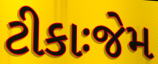
ટીકાઃજેમ